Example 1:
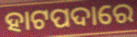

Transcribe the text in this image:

ହାଟପଦାରେ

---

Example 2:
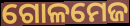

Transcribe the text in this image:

ଗୋଳମେଜ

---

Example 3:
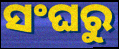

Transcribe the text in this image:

ସଂଘରୁ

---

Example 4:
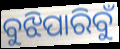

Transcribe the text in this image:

ବୁଝିପାରିବୁଁ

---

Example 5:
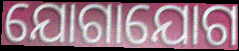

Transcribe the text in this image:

ଯୋଗାଯୋଗ